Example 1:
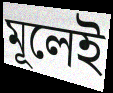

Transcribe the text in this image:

মূলেই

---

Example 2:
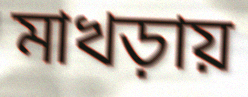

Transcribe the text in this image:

মাখড়ায়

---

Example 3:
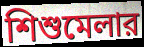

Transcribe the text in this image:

শিশুমেলার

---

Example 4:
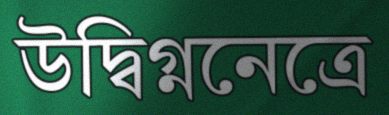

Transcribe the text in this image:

উদ্বিগ্ননেত্রে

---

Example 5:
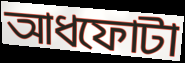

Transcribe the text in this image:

আধফোটা